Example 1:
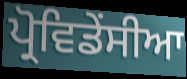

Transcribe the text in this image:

ਪ੍ਰੋਵਿਡੇਂਸੀਆ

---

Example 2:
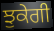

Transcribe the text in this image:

ਝੁਕੇਗੀ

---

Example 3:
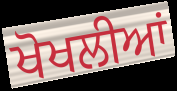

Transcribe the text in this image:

ਖੋਖਲੀਆਂ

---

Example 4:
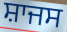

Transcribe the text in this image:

ਸ਼ਾਜਸ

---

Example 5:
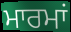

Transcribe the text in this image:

ਮਾਰਮਾਂ